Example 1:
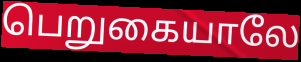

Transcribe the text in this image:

பெறுகையாலே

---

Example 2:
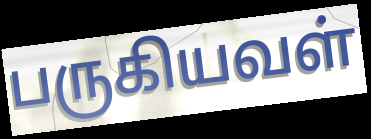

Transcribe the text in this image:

பருகியவள்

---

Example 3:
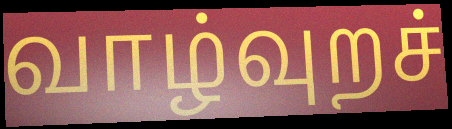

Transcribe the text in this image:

வாழ்வுறச்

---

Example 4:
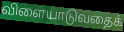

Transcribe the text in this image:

விளையாடுவதைக்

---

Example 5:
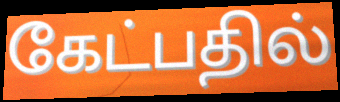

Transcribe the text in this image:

கேட்பதில்